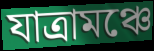
যাত্রামঞ্চে